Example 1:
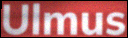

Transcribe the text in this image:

Ulmus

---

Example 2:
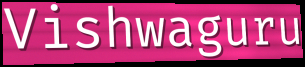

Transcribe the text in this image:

Vishwaguru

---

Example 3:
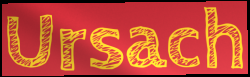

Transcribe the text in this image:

Ursach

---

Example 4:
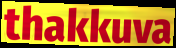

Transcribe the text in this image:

thakkuva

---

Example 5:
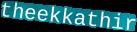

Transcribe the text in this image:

theekkathir